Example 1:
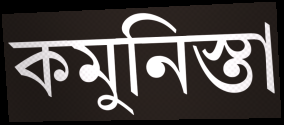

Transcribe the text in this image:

কমুনিস্তা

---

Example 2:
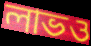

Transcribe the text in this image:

লাভও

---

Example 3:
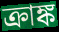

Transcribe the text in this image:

ক্রাঙ্ক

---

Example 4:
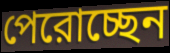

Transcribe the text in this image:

পেরোচ্ছেন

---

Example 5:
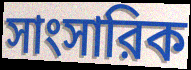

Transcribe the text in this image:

সাংসারিক